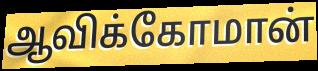
ஆவிக்கோமான்